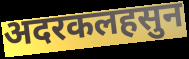
अदरकलहसुन